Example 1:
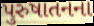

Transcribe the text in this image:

પુરુષાતનના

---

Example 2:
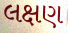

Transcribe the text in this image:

લક્ષણ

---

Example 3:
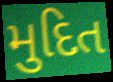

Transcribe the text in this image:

મુદિત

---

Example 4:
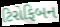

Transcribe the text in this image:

ટિરોફિબન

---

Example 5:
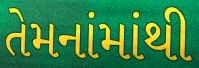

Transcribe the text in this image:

તેમનાંમાંથી